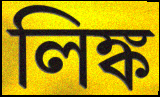
লিঙ্ক